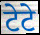
टेटे